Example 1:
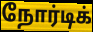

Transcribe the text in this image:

நோர்டிக்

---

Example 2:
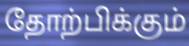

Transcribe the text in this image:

தோற்பிக்கும்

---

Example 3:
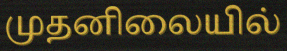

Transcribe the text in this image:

முதனிலையில்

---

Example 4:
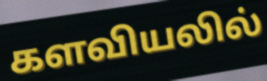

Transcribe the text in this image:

களவியலில்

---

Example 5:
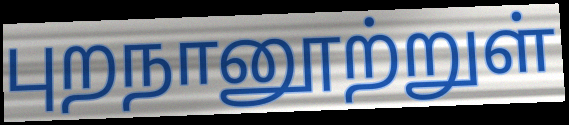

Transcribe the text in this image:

புறநானூற்றுள்